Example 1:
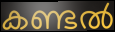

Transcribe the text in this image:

കണ്ടൽ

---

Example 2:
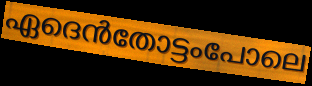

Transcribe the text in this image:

ഏദെൻതോട്ടംപോലെ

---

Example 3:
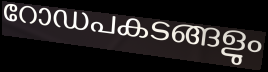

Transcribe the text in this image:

റോഡപകടങ്ങളും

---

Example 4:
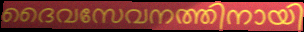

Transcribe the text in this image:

ദൈവസേവനത്തിനായി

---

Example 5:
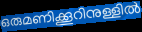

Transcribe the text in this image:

ഒരുമണിക്കൂറിനുള്ളിൽ